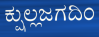
ಕ್ಷುಲ್ಲಜಗದಿಂ